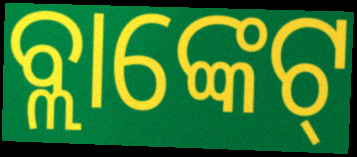
ବ୍ଲାଙ୍କେଟ୍